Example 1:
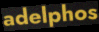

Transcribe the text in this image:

adelphos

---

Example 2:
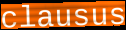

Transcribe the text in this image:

clausus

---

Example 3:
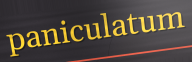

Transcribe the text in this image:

paniculatum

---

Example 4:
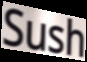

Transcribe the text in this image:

Sush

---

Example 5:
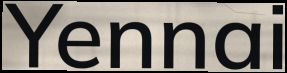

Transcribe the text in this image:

Yennai